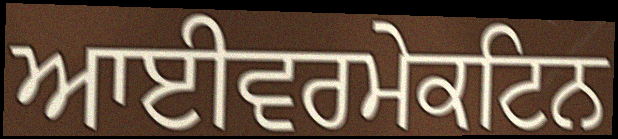
ਆਈਵਰਮੇਕਟਿਨ